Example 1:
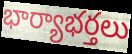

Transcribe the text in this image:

భార్యాభర్తలు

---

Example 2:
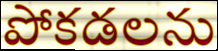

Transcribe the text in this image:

పోకడలను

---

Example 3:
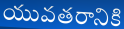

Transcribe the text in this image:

యువతరానికి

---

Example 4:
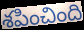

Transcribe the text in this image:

శపించింది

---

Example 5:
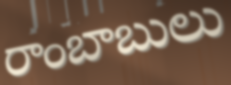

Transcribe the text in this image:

రాంబాబులు